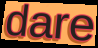
dare